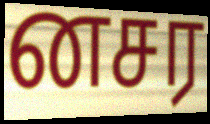
னசர